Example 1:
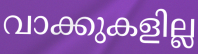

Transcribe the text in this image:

വാക്കുകളില്ല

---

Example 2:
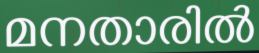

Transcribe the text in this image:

മനതാരിൽ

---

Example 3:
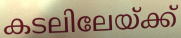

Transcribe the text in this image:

കടലിലേയ്ക്ക്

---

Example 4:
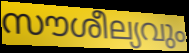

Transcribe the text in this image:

സൗശീല്യവും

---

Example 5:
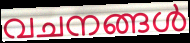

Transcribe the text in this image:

വചനങ്ങൾ